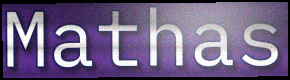
Mathas